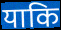
याकि